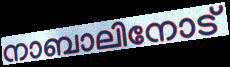
നാബാലിനോട്